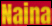
Naina